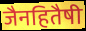
जैनहितैषी